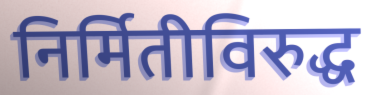
निर्मितीविरुद्ध